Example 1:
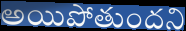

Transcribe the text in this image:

అయిపోతుందని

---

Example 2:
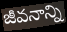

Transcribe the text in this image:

జీవనాన్ని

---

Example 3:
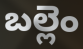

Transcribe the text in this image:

బల్లెం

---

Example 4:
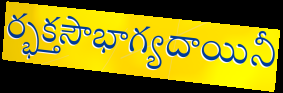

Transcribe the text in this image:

ర్భక్తసౌభాగ్యదాయినీ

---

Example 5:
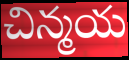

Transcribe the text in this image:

చిన్మయ